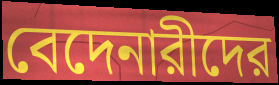
বেদেনারীদের